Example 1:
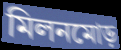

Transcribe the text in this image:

মিলনমোড়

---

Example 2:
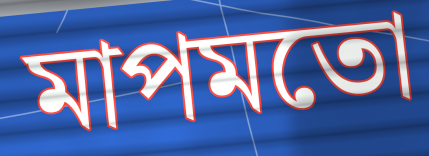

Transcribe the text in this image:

মাপমতো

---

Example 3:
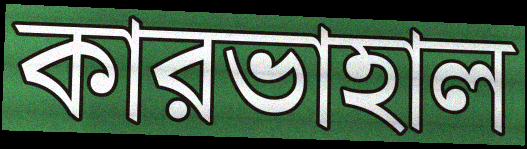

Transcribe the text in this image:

কারভাহাল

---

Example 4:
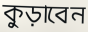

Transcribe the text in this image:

কুড়াবেন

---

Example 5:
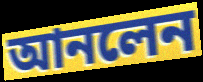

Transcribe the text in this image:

আনলেন